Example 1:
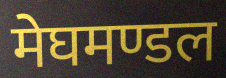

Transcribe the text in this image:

मेघमण्डल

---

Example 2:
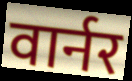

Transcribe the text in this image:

वार्नर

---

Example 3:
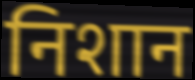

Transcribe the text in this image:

निशान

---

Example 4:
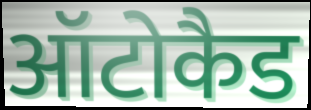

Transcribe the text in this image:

ऑटोकैड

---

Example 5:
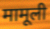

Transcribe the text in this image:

मामूली